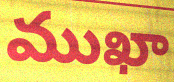
ముఖా